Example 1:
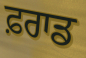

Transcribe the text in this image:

ਫ਼ਰਾਡ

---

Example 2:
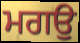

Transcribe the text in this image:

ਮਗਉ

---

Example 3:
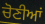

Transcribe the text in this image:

ਚੋਣੀਆਂ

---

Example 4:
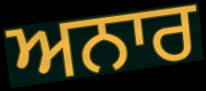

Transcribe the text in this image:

ਅਨਾਰ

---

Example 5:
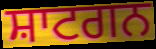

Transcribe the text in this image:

ਸ਼ਾਟਗਨ